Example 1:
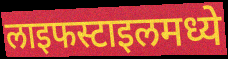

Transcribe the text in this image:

लाइफस्टाइलमध्ये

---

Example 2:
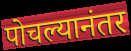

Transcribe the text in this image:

पोचल्यानंतर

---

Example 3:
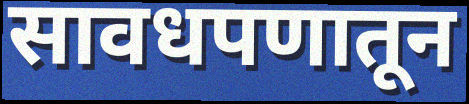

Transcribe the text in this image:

सावधपणातून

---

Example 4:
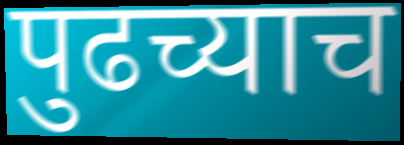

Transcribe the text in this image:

पुढच्याच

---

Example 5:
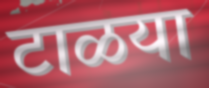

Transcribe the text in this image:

टाळया